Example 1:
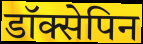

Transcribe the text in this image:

डॉक्सेपिन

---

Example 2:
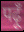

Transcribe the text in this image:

पढ़ूँ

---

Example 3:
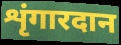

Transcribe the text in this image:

शृंगारदान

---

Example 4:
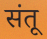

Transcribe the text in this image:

संतू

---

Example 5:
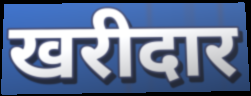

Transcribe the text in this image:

खरीदार